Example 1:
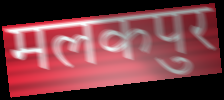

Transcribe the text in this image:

मलकपुर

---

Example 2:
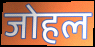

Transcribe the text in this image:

जोहल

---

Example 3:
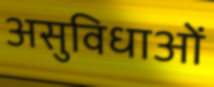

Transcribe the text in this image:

असुविधाओं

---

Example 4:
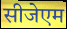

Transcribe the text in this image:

सीजेएम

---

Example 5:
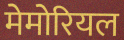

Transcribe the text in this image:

मेमोरियल